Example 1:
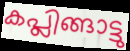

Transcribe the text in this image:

കപ്ലിങ്ങാട്ടു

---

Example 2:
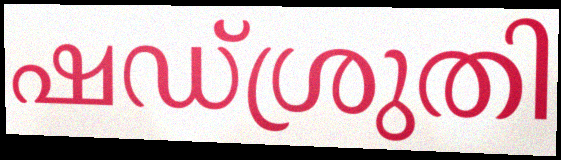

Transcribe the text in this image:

ഷഡ്ശ്രുതി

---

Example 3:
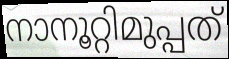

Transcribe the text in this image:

നാനൂറ്റിമുപ്പത്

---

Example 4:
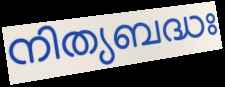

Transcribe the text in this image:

നിത്യബദ്ധഃ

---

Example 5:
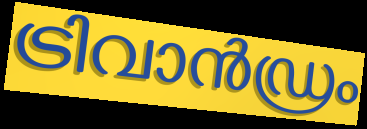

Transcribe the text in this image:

ട്രിവാൻഡ്രം